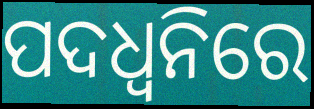
ପଦଧ୍ୱନିରେ